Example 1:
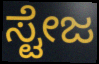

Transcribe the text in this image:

ಸ್ಟೇಜ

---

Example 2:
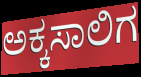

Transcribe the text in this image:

ಅಕ್ಕಸಾಲಿಗ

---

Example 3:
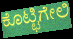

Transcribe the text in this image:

ಕೊಟ್ಟಿಗೇಲಿ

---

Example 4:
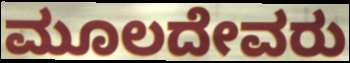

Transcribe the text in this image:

ಮೂಲದೇವರು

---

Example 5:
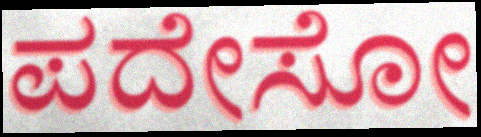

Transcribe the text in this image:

ಪದೇಸೋ